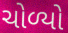
ચોળ્યો